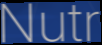
Nutr